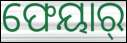
ଫେୟାର୍